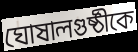
ঘোষালগুষ্ঠীকে